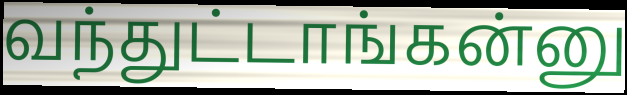
வந்துட்டாங்கன்னு